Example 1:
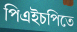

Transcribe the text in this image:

পিএইচপিতে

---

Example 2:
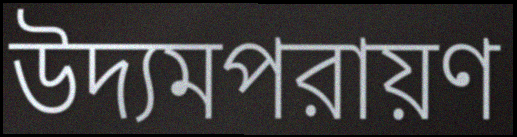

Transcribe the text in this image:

উদ্যমপরায়ণ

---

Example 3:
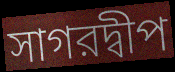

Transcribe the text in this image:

সাগরদ্বীপ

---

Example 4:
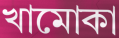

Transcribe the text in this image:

খামোকা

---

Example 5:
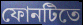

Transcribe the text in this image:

ফোনটিতে